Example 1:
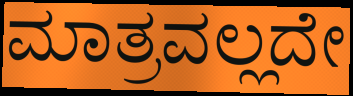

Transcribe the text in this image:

ಮಾತ್ರವಲ್ಲದೇ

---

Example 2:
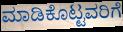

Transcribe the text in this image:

ಮಾಡಿಕೊಟ್ಟವರಿಗೆ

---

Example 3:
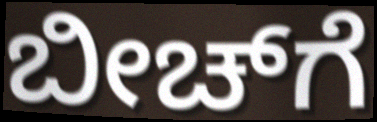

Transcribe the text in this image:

ಬೀಚ್‌ಗೆ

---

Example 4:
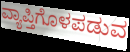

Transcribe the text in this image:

ವ್ಯಾಪ್ತಿಗೊಳಪಡುವ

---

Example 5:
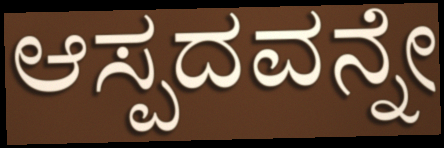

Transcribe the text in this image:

ಆಸ್ಪದವನ್ನೇ